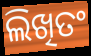
ଲିଖିତଂ